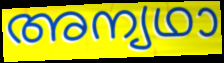
അന്യഥാ